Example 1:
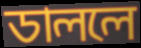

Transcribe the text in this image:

ডাললে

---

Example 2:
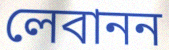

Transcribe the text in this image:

লেবানন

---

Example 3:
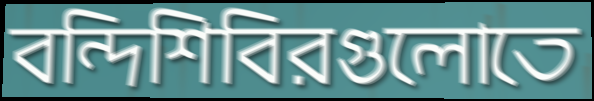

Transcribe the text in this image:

বন্দিশিবিরগুলোতে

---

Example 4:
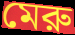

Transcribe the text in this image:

মেরু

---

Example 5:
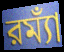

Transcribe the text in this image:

রম্যাঁ